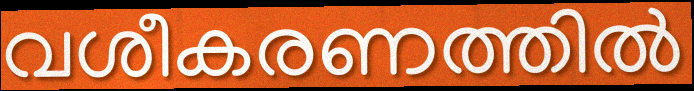
വശീകരണത്തിൽ